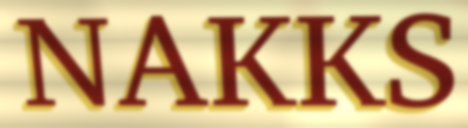
NAKKS